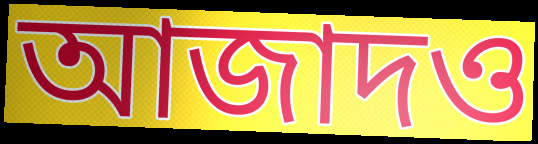
আজাদও